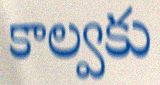
కాల్వకు